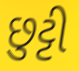
છુટ્ટી